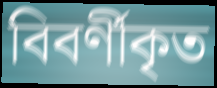
বিবর্ণীকৃত